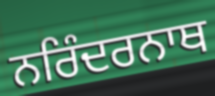
ਨਰਿੰਦਰਨਾਥ